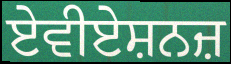
ਏਵੀਏਸ਼ਨਜ਼